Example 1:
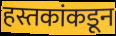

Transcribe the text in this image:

हस्तकांकडून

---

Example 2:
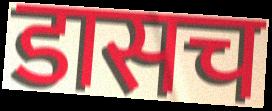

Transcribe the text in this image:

डासच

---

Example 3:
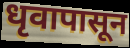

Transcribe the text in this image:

धृवापासून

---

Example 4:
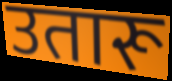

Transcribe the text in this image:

उतारू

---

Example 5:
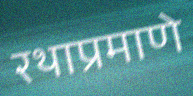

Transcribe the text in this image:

रथाप्रमाणे